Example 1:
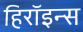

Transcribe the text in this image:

हिरॉइन्स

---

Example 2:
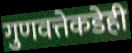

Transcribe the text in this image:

गुणवत्तेकडेही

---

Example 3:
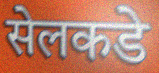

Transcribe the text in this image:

सेलकडे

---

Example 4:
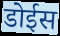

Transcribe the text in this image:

डोईस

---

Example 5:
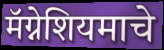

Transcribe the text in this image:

मॅग्नेशियमाचे